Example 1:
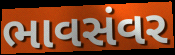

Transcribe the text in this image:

ભાવસંવર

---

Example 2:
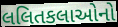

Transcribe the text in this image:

લલિતકલાઓનો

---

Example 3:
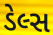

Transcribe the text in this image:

ડેલ્સ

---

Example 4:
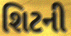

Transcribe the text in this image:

શિટની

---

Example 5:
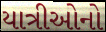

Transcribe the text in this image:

યાત્રીઓનો